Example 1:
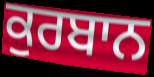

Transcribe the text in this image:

ਕੁਰਬਾਨ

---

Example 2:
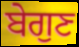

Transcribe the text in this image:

ਬੇਗੁਣ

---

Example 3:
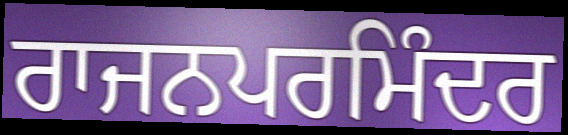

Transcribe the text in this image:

ਰਾਜਨਪਰਮਿੰਦਰ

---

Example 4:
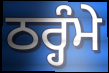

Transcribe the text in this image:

ਠਰ੍ਹੰਮੇ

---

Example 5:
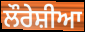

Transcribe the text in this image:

ਲੌਰੇਸ਼ੀਆ